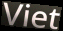
Viet